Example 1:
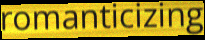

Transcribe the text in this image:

romanticizing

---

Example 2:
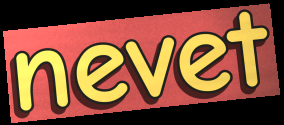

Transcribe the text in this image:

nevet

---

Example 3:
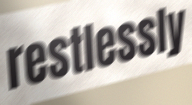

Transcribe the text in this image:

restlessly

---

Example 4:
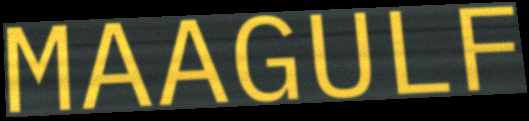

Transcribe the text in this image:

MAAGULF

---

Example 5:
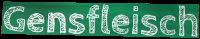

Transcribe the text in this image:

Gensfleisch